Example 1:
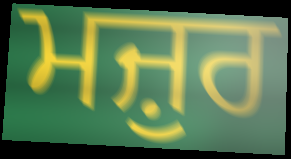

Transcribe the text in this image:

ਮਜ਼ੁਰ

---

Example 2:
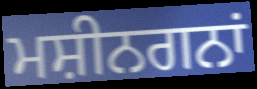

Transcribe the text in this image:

ਮਸ਼ੀਨਗਨਾਂ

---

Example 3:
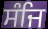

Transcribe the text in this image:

ਸੰਜਿ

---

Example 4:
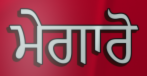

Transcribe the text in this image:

ਮੇਗਾਰੋ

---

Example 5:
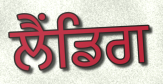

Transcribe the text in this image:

ਲੈਂਡਿਗ